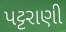
પટ્ટરાણી